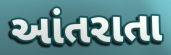
આંતરાતા